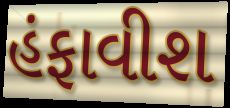
હંફાવીશ